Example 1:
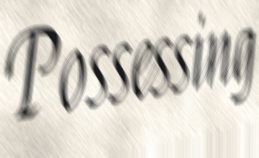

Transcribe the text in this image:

Possessing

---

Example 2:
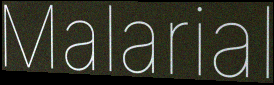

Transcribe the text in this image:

Malarial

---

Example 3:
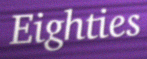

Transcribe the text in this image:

Eighties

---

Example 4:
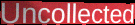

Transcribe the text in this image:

Uncollected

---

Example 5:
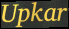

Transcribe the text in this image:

Upkar